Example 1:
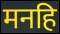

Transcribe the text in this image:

मनहि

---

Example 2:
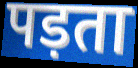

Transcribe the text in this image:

पड़ता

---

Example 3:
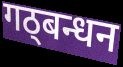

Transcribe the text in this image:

गठ्बन्धन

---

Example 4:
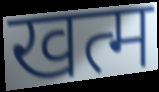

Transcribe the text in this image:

खत्म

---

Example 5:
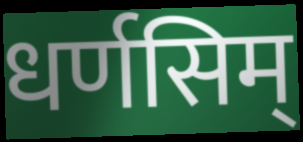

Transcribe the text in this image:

धर्णसिम्